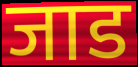
जाड